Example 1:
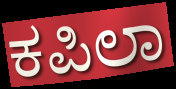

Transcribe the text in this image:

ಕಪಿಲಾ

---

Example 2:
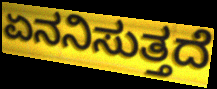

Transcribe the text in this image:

ಏನನಿಸುತ್ತದೆ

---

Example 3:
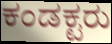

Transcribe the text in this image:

ಕಂಡಕ್ಟರು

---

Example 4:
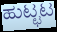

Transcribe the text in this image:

ಹುಟ್ಟಟ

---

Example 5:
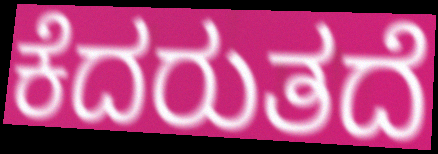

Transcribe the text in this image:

ಕೆದರುತದೆ